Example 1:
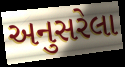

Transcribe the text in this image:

અનુસરેલા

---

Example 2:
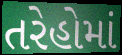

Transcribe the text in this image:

તરેહોમાં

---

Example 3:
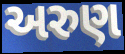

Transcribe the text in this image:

અરુણ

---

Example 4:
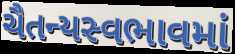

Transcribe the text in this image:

ચૈતન્યસ્વભાવમાં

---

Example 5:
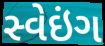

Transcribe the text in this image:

સ્વેઇંગ